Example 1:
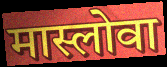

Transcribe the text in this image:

मास्लोवा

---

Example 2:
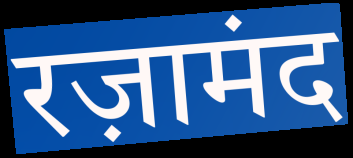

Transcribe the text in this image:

रज़ामंद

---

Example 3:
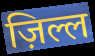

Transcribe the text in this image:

ज़िल्ल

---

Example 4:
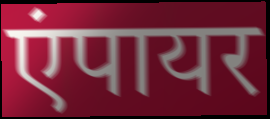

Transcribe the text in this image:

एंपायर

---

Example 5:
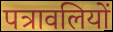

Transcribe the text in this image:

पत्रावलियों